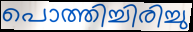
പൊത്തിച്ചിരിച്ചു